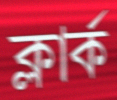
ক্লার্ক